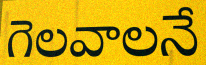
గెలవాలనే